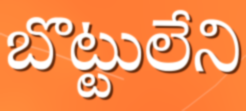
బొట్టులేని